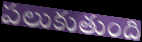
పలుకుతుంది